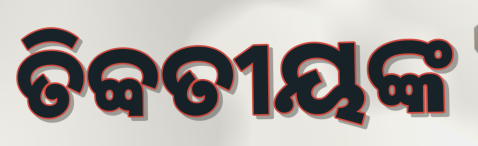
ତିବ୍ବତୀୟଙ୍କ